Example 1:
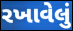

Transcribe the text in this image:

રખાવેલું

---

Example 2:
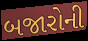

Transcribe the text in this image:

બજારોની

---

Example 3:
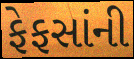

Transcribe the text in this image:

ફેફસાંની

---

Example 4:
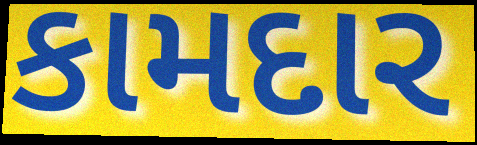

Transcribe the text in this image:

કામદાર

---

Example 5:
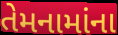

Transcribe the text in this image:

તેમનામાંના